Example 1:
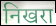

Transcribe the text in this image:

निखरा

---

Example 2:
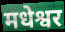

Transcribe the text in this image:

मधेश्वर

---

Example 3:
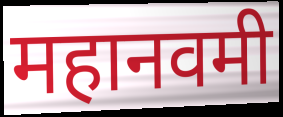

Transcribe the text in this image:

महानवमी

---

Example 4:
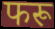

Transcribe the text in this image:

फरू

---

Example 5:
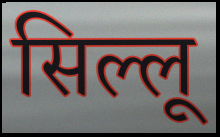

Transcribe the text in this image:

सिल्लू